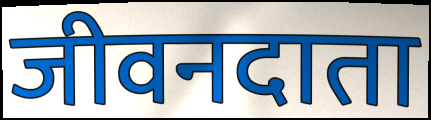
जीवनदाता